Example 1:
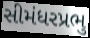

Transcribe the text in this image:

સીમંધરપ્રભુ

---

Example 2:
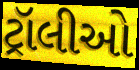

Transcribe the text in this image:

ટ્રૉલીઓ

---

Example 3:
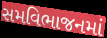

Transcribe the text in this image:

સમવિભાજનમાં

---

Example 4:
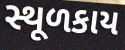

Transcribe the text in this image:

સ્થૂળકાય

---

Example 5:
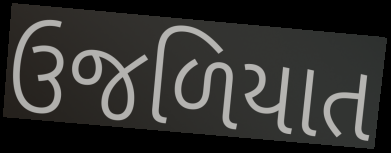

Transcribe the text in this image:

ઉજળિયાત